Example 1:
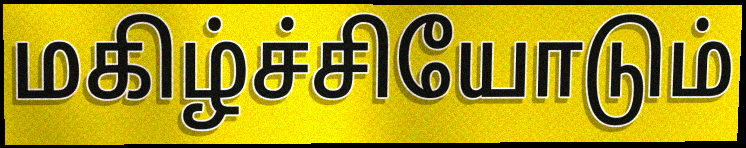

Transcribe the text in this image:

மகிழ்ச்சியோடும்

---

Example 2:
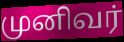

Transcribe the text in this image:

முனிவர்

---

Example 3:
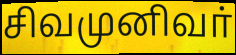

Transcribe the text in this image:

சிவமுனிவர்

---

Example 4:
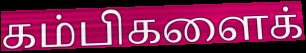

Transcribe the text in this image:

கம்பிகளைக்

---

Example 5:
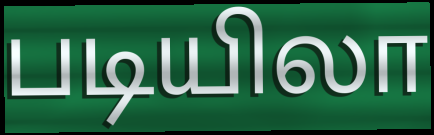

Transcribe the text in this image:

படியிலா